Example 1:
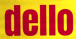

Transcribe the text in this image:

dello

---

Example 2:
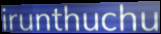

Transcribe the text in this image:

irunthuchu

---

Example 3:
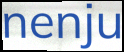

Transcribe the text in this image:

nenju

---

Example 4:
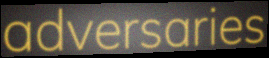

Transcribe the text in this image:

adversaries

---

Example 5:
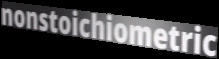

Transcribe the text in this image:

nonstoichiometric